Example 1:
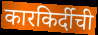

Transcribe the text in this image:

कारकिर्दीची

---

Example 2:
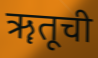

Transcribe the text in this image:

ॠतूची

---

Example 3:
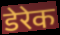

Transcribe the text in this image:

डेरेक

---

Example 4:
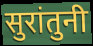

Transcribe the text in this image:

सुरांतुनी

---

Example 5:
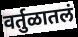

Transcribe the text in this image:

वर्तुळातलं